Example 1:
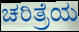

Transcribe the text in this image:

ಚರಿತ್ರೆಯ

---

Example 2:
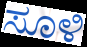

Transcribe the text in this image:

ಸೂಳಿ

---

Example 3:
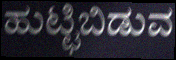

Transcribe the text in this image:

ಹುಟ್ಟಿಬಿಡುವ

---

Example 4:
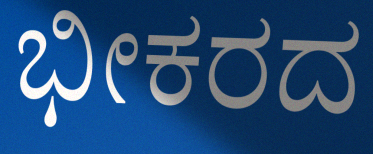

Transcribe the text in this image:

ಭೀಕರದ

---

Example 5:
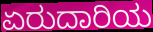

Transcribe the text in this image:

ಏರುದಾರಿಯ